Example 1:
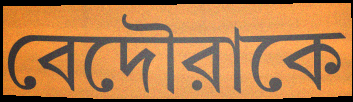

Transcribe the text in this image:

বেদৌরাকে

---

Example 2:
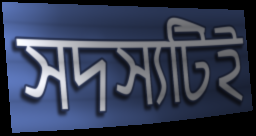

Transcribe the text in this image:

সদস্যটিই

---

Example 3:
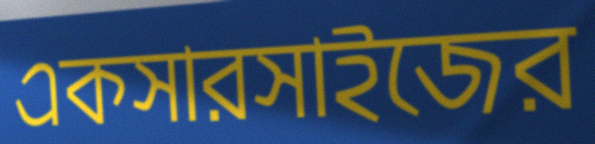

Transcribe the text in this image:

একসারসাইজের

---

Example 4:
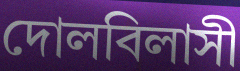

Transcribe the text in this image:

দোলবিলাসী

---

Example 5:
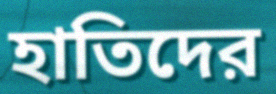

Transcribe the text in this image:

হাতিদের